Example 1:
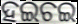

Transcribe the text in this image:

ହଇଚଇ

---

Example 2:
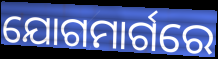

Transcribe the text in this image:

ଯୋଗମାର୍ଗରେ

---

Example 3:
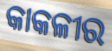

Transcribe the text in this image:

କାକଳୀର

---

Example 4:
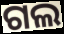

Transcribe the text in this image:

ଗଲ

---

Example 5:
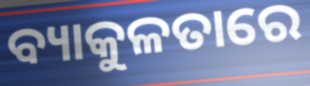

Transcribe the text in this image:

ବ୍ୟାକୁଳତାରେ